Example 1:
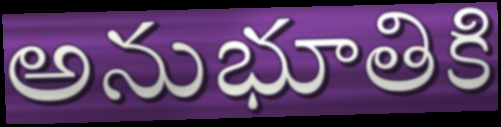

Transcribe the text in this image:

అనుభూతికి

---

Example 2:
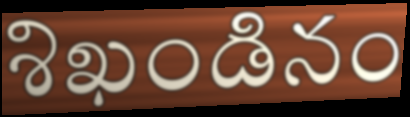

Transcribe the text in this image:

శిఖండినం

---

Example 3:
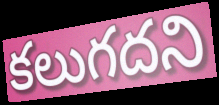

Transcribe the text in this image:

కలుగదని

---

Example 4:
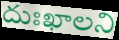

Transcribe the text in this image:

దుఃఖాలని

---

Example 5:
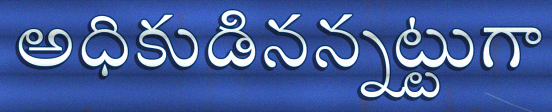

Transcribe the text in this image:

అధికుడినన్నట్టుగా